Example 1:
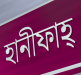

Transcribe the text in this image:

হানীফাহ্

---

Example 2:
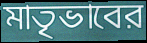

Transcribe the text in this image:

মাতৃভাবের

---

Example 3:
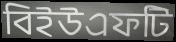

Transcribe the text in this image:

বিইউএফটি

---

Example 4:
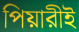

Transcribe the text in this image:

পিয়ারীই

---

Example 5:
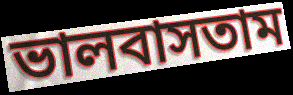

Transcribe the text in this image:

ভালবাসতাম